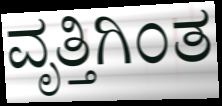
ವೃತ್ತಿಗಿಂತ